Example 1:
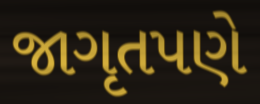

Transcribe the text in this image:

જાગૃતપણે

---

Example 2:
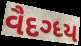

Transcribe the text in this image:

વૈદગ્ધ્ય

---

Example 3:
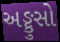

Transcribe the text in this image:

અઙ્કુસો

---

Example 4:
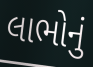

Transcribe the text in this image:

લાભોનું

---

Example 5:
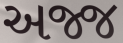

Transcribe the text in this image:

અજ્જ